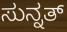
ಸುನ್ನತ್